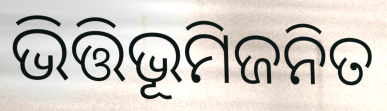
ଭିତ୍ତିଭୂମିଜନିତ